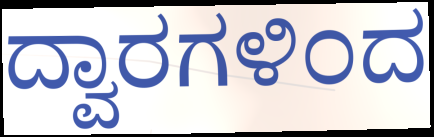
ದ್ವಾರಗಳಿಂದ